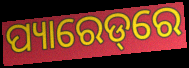
ପ୍ୟାରେଡ୍‌ରେ